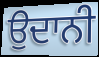
ਉਦਾਨੀ